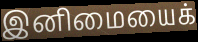
இனிமையைக்